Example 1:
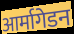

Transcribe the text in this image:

आर्मागेडन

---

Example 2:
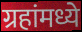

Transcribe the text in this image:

ग्रहांमध्ये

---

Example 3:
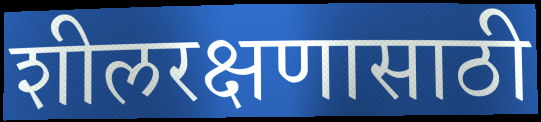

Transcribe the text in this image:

शीलरक्षणासाठी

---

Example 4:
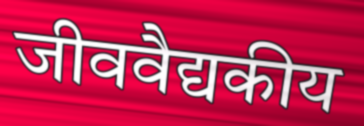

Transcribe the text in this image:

जीववैद्यकीय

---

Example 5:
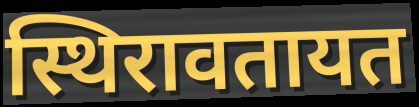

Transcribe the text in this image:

स्थिरावतायत